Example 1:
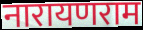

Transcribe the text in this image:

नारायणराम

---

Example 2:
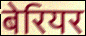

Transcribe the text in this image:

बेरियर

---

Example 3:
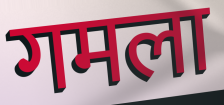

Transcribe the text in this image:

गमला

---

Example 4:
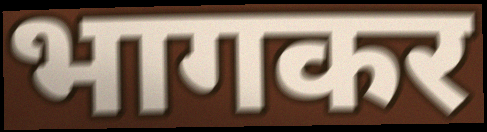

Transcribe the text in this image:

भागकर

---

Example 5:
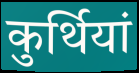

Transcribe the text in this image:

कुर्थियां